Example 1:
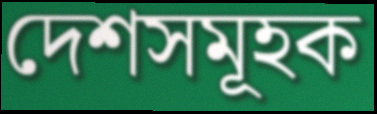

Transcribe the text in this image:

দেশসমূহক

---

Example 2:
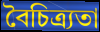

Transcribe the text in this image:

বৈচিত্ৰ্যতা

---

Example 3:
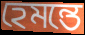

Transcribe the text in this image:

হেমন্তে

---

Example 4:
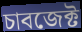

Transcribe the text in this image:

চাবজেক্ট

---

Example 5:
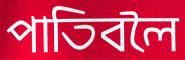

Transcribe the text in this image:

পাতিবলৈ